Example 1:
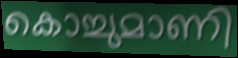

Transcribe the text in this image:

കൊച്ചുമാണി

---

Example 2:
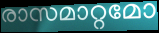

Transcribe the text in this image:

രാസമാറ്റമോ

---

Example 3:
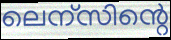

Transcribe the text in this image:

ലെന്സിന്റെ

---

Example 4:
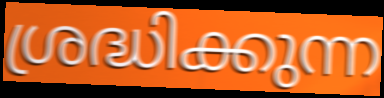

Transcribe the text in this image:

ശ്രദ്ധിക്കുന്ന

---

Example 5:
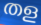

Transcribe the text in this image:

തള